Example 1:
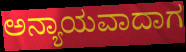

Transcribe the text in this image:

ಅನ್ಯಾಯವಾದಾಗ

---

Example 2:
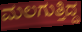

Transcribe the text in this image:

ಮಲಗುತ್ತಿದ್ದ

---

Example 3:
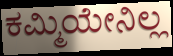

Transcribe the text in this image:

ಕಮ್ಮಿಯೇನಿಲ್ಲ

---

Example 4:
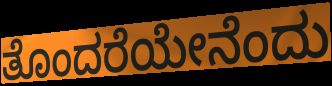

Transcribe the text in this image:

ತೊಂದರೆಯೇನೆಂದು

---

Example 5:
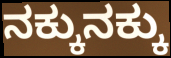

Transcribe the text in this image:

ನಕ್ಕುನಕ್ಕು